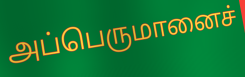
அப்பெருமானைச்